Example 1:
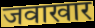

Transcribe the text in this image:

जवाखार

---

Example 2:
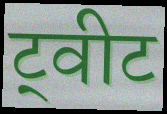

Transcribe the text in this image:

ट्‍वीट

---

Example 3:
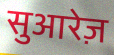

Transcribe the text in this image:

सुआरेज़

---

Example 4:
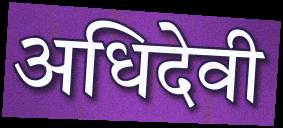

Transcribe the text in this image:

अधिदेवी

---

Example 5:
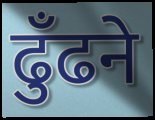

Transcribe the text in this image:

ढुँढने